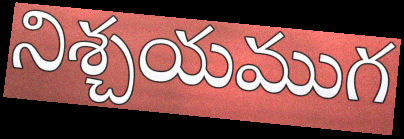
నిశ్చయముగ